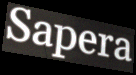
Sapera